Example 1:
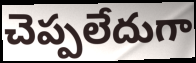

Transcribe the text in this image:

చెప్పలేదుగా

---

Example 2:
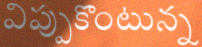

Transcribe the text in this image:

విప్పుకొంటున్న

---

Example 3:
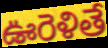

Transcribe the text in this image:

ఊరెళితే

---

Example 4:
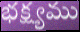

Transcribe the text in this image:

భక్ష్యము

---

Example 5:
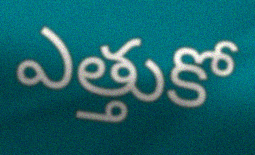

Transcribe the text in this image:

ఎత్తుకో